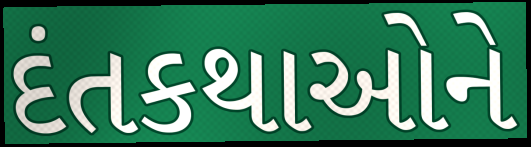
દંતકથાઓને